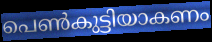
പെൺകുട്ടിയാകണം